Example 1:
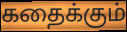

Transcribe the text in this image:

கதைக்கும்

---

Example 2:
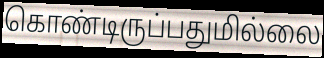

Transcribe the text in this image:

கொண்டிருப்பதுமில்லை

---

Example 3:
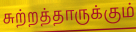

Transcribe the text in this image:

சுற்றத்தாருக்கும்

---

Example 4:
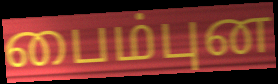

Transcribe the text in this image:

பைம்புன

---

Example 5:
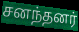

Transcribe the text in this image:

சனந்தனர்